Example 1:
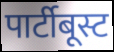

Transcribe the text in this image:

पार्टीबूस्ट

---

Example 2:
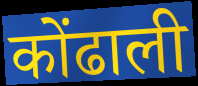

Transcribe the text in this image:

कोंढाली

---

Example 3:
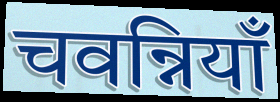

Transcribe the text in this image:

चवन्नियाँ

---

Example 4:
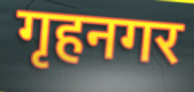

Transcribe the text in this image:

गृहनगर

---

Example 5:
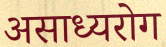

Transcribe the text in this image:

असाध्यरोग